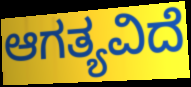
ಆಗತ್ಯವಿದೆ